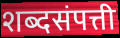
शब्दसंपत्ती